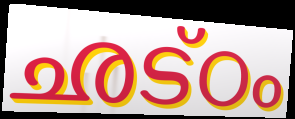
ഛട്ഠം